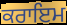
ਕਰਾਇਮ